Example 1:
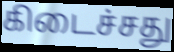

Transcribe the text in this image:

கிடைச்சது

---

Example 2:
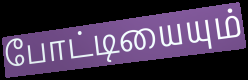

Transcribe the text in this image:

போட்டியையும்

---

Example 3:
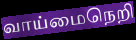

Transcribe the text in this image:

வாய்மைநெறி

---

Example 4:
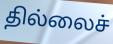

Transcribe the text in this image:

தில்லைச்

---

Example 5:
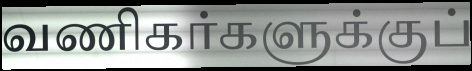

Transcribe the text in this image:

வணிகர்களுக்குப்